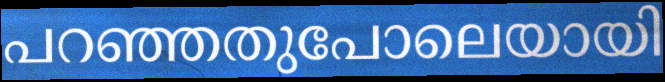
പറഞ്ഞതുപോലെയായി